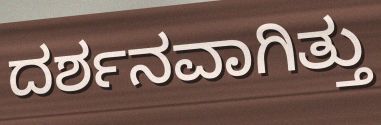
ದರ್ಶನವಾಗಿತ್ತು